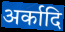
अर्कादि